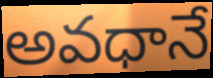
అవధానే